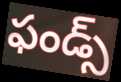
ఫండ్స్